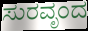
ಸುರವೃಂದ